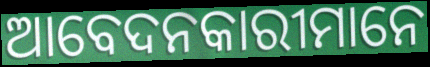
ଆବେଦନକାରୀମାନେ